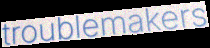
troublemakers